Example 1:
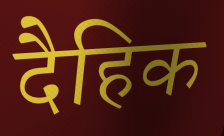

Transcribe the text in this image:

दैहिक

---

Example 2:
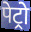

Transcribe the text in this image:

पेट्रो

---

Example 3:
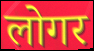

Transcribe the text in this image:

लोगर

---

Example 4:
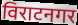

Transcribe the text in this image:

विराटनगर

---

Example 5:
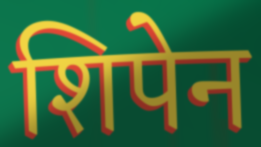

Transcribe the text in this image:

शिपेन